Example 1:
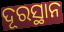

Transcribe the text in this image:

ଦୂରସ୍ଥାନ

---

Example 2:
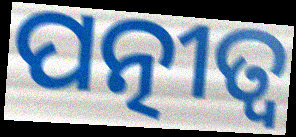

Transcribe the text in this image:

ପତ୍ନୀତ୍ୱ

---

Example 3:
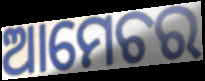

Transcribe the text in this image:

ଆମେଚର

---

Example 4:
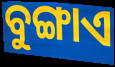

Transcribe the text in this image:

ବୁଙ୍ଗାଏ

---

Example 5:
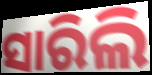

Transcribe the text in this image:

ସାରିଲି